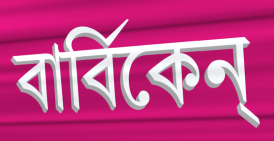
বার্বিকেন্